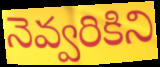
నెవ్వరికిని